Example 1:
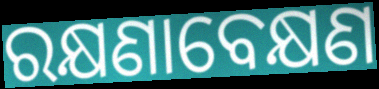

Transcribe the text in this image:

ରକ୍ଷଣାବେକ୍ଷଣ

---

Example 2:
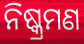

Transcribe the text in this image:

ନିଷ୍କ୍ରମଣ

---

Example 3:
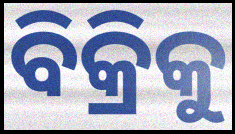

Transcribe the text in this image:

ବିକ୍ରିକୁ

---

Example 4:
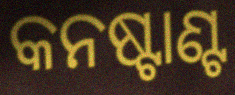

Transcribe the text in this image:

କନଷ୍ଟାଣ୍ଟ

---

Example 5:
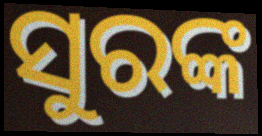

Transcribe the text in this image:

ସୁରଙ୍କ